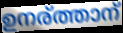
ഉനര്ത്താന്